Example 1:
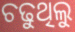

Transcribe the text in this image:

ଚଢୁଥିଲୁ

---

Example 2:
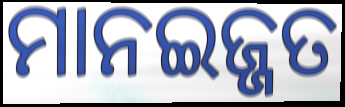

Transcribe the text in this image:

ମାନଇଜ୍ଜତ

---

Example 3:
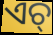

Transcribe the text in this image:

ଏଚ୍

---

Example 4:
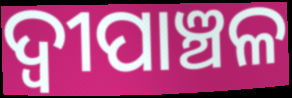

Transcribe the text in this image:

ଦ୍ୱୀପାଞ୍ଚଳ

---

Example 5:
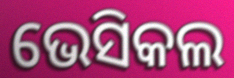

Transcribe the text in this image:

ଭେସିକଲ